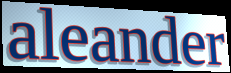
aleander